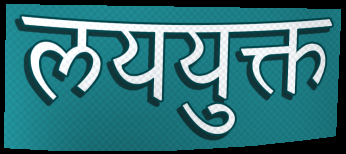
लययुक्त